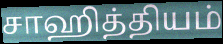
சாஹித்தியம்